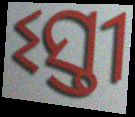
ଽସ୍ତୀ